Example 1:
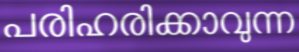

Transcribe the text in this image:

പരിഹരിക്കാവുന്ന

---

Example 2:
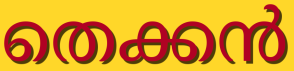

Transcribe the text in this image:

തെക്കൻ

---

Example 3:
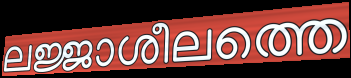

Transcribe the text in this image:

ലജ്ജാശീലത്തെ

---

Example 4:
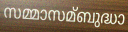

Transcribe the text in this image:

സമ്മാസമ്ബുദ്ധാ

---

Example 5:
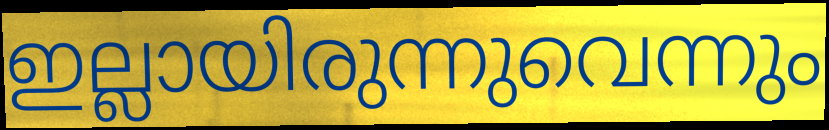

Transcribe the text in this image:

ഇല്ലായിരുന്നുവെന്നും